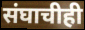
संघाचीही